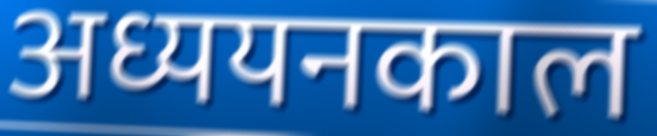
अध्ययनकाल